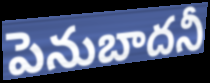
పెనుబాదనీ